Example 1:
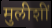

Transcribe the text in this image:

मुलीशीं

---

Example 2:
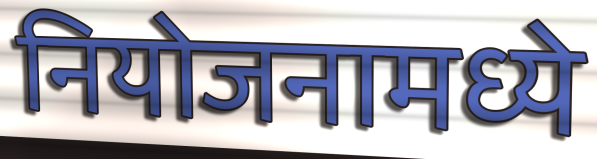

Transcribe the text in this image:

नियोजनामध्ये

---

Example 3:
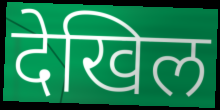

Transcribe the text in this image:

देखिल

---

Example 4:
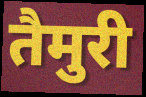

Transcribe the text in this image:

तैमुरी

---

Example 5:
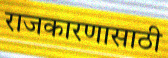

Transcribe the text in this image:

राजकारणासाठी